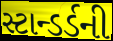
સ્ટાન્ડર્ડની